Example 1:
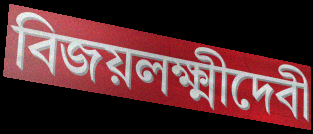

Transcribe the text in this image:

বিজয়লক্ষ্মীদেবী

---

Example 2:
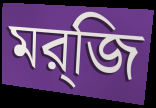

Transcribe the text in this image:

মর্‌জি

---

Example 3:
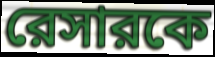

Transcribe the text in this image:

রেসারকে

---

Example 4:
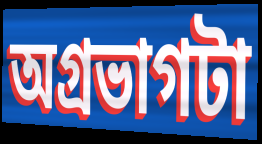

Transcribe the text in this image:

অগ্রভাগটা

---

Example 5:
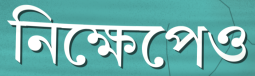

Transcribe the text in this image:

নিক্ষেপেও